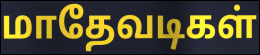
மாதேவடிகள்